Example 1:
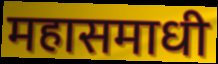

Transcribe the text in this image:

महासमाधी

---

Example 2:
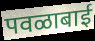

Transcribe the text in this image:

पवळाबाई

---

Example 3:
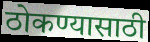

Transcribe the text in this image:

ठोकण्यासाठी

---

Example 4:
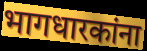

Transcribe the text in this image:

भागधारकांना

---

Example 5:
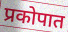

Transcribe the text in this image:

प्रकोपात